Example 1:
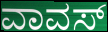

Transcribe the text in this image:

ವಾವಸ್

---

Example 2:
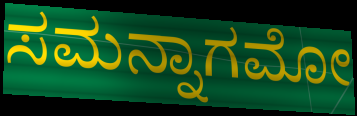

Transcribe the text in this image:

ಸಮನ್ನಾಗಮೋ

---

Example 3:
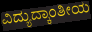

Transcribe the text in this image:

ವಿದ್ಯುದ್ಕಾಂತೀಯ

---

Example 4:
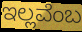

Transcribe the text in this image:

ಇಲ್ಲವೆಂಬ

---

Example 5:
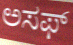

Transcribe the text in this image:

ಅಸಫ್